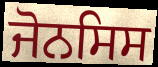
ਜੋਨਸਿਸ